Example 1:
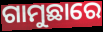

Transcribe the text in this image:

ଗାମୁଛାରେ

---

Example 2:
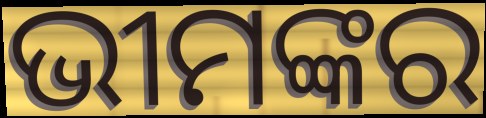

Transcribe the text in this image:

ଭୀମଙ୍କର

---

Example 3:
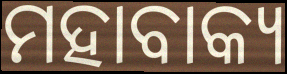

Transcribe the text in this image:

ମହାବାକ୍ୟ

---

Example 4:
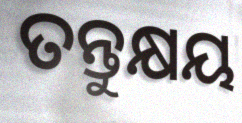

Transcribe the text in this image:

ତନ୍ତୁକ୍ଷୟ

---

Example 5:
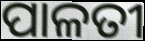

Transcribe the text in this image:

ପାଳତୀ